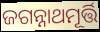
ଜଗନ୍ନାଥମୂର୍ତ୍ତି